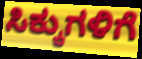
ಸಿಕ್ಕುಗಳಿಗೆ